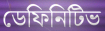
ডেফিনিটিভ